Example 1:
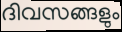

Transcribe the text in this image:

ദിവസങ്ങളും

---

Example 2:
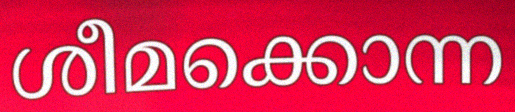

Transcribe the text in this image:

ശീമക്കൊന്ന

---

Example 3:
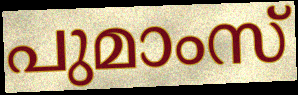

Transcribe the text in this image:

പുമാംസ്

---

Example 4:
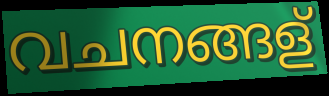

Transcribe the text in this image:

വചനങ്ങള്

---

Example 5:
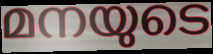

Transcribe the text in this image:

മനയുടെ